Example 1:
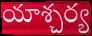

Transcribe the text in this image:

యాశ్చర్య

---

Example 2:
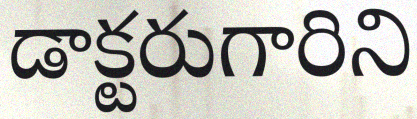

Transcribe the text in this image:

డాక్టరుగారిని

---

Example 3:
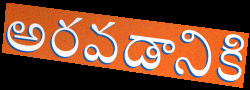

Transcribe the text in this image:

అరవడానికి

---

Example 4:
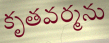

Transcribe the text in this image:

కృతవర్మను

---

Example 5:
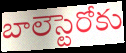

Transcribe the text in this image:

బాలెస్టెరోకు